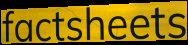
factsheets